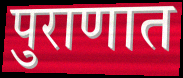
पुराणात